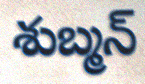
శుబ్మన్